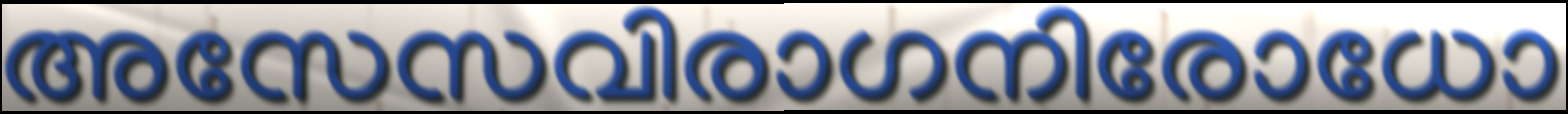
അസേസവിരാഗനിരോധോ